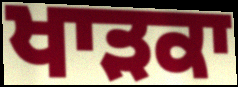
ਖਾੜਕਾ